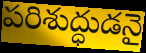
పరిశుద్ధుడనై